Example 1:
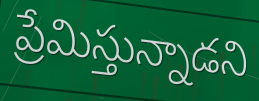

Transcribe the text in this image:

ప్రేమిస్తున్నాడని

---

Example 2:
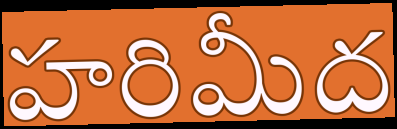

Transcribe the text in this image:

హరిమీద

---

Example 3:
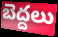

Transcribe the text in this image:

బెద్దలు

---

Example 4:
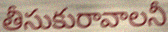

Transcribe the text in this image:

తీసుకురావాలనీ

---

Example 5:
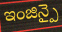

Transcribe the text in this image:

ఇంజిన్పై